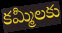
కమ్మీలకు